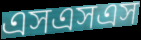
এসএসএস